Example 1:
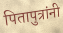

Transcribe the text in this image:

पितापुत्रांनी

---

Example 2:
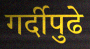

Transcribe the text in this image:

गर्दीपुढे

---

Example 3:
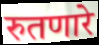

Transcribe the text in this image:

रुतणारे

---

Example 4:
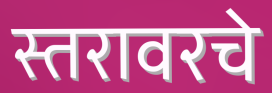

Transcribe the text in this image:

स्तरावरचे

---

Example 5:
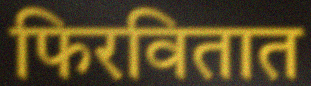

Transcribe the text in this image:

फिरवितात